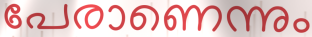
പേരാണെന്നും